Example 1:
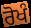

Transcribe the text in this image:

ਰੋਖੰ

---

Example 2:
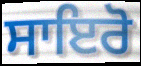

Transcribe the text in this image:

ਸਾਇਰੋ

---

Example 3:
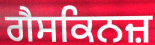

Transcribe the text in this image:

ਗੈਸਕਿਨਜ਼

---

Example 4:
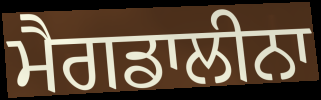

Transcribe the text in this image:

ਮੈਗਡਾਲੀਨਾ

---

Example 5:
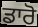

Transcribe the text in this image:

ਡਾਰੋ